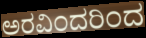
ಅರವಿಂದರಿಂದ